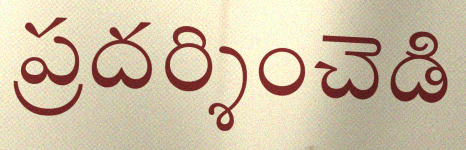
ప్రదర్శించెడి